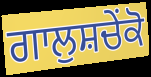
ਗਾਲੁਸ਼ਚੇਂਕੋ